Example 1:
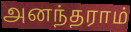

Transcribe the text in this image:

அனந்தராம்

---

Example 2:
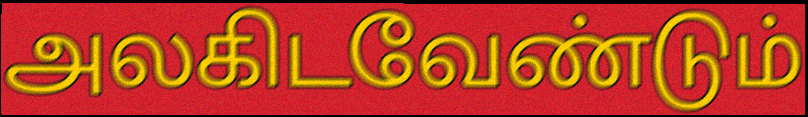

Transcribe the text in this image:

அலகிடவேண்டும்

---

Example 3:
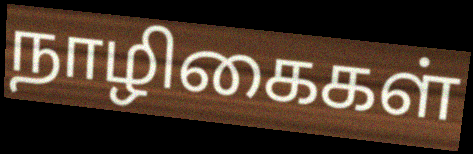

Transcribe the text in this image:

நாழிகைகள்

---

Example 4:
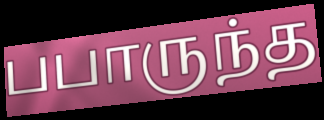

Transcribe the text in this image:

பபாருந்த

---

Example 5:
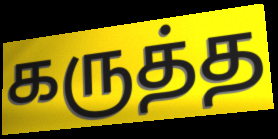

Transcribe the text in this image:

கருத்த